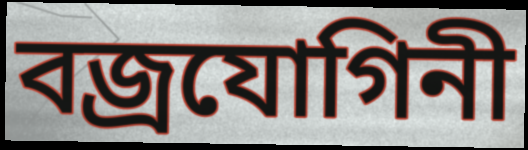
বজ্ৰযোগিনী